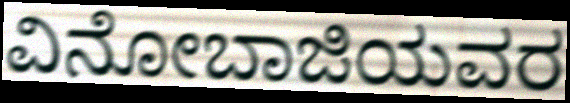
ವಿನೋಬಾಜಿಯವರ